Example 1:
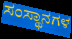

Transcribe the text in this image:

ಸಂಸ್ಥಾನಗಳ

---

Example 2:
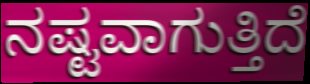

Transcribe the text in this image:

ನಷ್ಟವಾಗುತ್ತಿದೆ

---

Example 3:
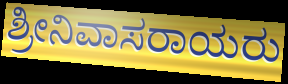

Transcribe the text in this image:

ಶ್ರೀನಿವಾಸರಾಯರು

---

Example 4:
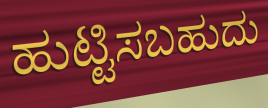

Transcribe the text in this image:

ಹುಟ್ಟಿಸಬಹುದು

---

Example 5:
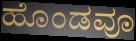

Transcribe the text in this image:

ಹೊಂಡವೂ